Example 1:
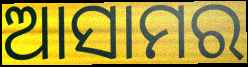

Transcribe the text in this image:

ଆସାମର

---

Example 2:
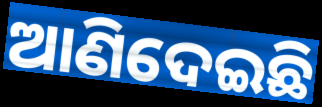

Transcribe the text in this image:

ଆଣିଦେଇଛି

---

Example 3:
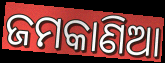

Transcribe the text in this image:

ଜମକାଣିଆ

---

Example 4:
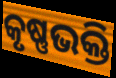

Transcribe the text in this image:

କୃଷ୍ଣଭକ୍ତି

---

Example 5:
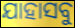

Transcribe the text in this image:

ଯାହାସବୁ